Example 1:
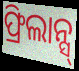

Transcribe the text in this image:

ଫ୍ରିଲାନ୍ସ୍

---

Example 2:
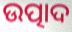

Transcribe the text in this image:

ଉତ୍ପାଦ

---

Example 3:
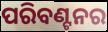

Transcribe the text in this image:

ପରିବଣ୍ଟନର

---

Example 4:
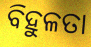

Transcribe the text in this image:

ବିହୁଳତା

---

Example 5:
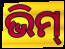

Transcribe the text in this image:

ଭିମ୍